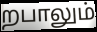
றபாலும்